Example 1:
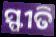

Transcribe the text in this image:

ସ୍ଫୀତି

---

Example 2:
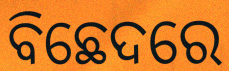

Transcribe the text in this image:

ବିଛେଦରେ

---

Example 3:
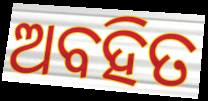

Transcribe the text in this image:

ଅବହିତ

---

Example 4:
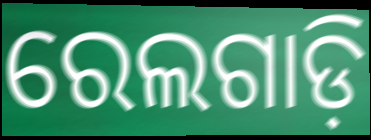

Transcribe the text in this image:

ରେଲଗାଡ଼ି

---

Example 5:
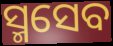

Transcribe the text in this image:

ସ୍ମସେବ